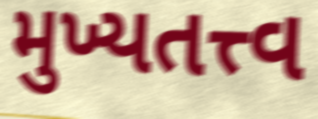
મુખ્યતત્ત્વ